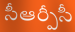
సీఆర్పీసీ